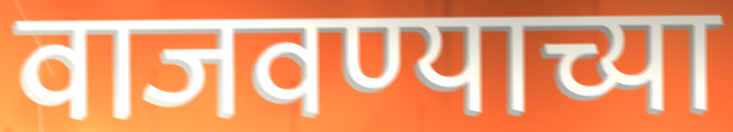
वाजवण्याच्या